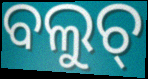
ବଲୁଚ୍